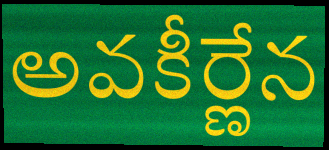
అవకీర్ణేన